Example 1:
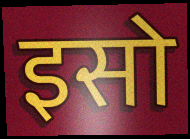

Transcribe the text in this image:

इसो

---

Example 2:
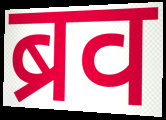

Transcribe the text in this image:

ब्रव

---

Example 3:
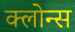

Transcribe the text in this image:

क्लोन्स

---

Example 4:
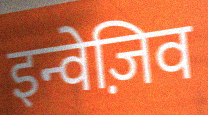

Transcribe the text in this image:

इन्वेज़िव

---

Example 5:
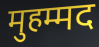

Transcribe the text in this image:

मुहम्‍मद